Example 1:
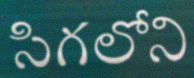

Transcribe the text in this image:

సిగలోని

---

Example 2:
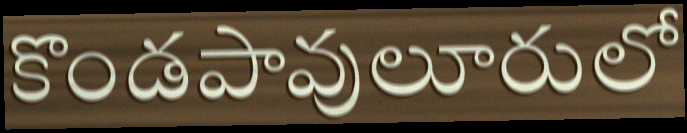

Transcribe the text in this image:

కొండపావులూరులో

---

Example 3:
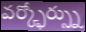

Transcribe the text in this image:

వర్క్ఫోర్స్ను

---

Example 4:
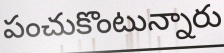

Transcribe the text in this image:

పంచుకొంటున్నారు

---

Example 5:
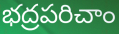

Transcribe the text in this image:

భద్రపరిచాం